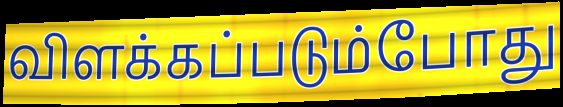
விளக்கப்படும்போது